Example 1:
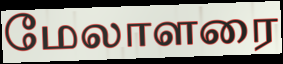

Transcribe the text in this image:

மேலாளரை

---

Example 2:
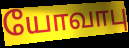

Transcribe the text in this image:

யோவாபு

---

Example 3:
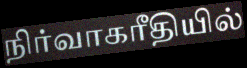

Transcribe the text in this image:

நிர்வாகரீதியில்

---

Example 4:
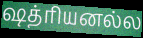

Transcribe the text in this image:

ஷத்ரியனல்ல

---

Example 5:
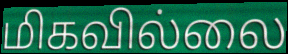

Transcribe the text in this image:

மிகவில்லை